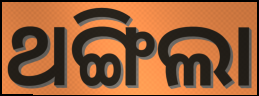
ଥଙ୍ଗିଲା